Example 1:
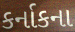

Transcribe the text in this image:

કર્નાકના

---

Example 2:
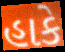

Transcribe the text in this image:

હાકે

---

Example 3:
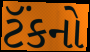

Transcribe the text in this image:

ટૅંકનો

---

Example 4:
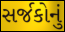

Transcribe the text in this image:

સર્જકોનું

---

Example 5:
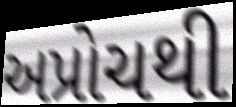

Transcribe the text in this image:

અપ્રોચથી